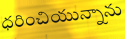
ధరించియున్నాను